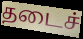
தடைச்